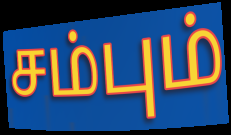
சம்பும்